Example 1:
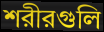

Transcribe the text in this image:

শরীরগুলি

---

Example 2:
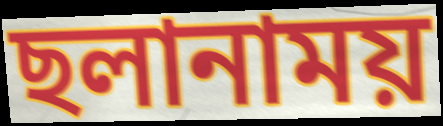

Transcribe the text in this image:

ছলানাময়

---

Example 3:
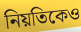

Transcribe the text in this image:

নিয়তিকেও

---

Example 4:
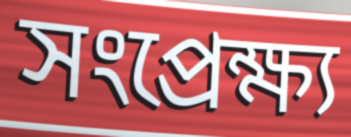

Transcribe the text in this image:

সংপ্রেক্ষ্য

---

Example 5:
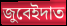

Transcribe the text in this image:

জুবেইদাত